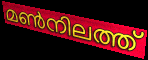
മൺനിലത്ത്